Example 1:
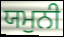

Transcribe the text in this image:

ਯਮੁਨੀ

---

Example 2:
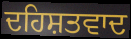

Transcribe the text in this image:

ਦਹਿਸ਼ਤਵਾਦ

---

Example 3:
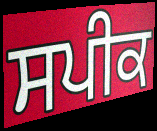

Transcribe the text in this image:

ਸਪੀਕ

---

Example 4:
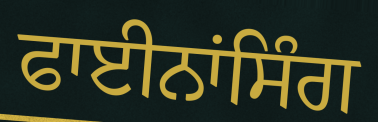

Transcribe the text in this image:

ਫਾਈਨਾਂਸਿੰਗ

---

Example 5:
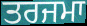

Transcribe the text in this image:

ਤਰਜਮਾ